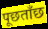
पूछताँछ